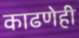
काढणेही